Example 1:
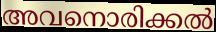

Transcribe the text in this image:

അവനൊരിക്കൽ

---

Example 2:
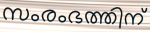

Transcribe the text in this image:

സംരംഭത്തിന്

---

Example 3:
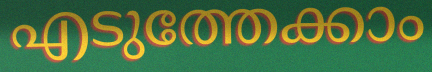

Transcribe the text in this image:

എടുത്തേക്കാം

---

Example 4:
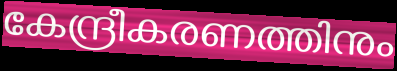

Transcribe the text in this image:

കേന്ദ്രീകരണത്തിനും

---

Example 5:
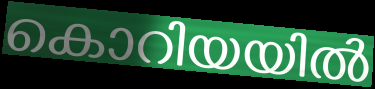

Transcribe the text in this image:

കൊറിയയിൽ